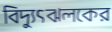
বিদ্যুৎঝলকের